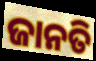
ଜାନତି